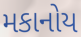
મકાનોય